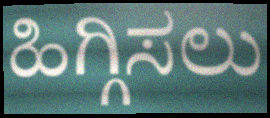
ಹಿಗ್ಗಿಸಲು